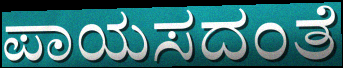
ಪಾಯಸದಂತೆ